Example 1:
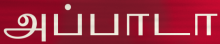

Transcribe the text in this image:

அப்பாடா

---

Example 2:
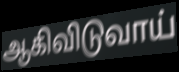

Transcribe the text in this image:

ஆகிவிடுவாய்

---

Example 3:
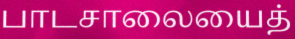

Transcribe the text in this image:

பாடசாலையைத்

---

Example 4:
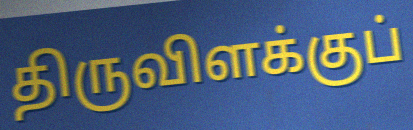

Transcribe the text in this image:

திருவிளக்குப்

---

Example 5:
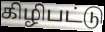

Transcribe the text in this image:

கிழிபட்டு